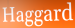
Haggard